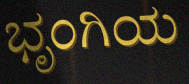
ಭೃಂಗಿಯ